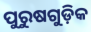
ପୁରୁଷଗୁଡ଼ିକ